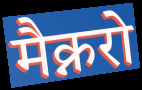
मैक्नरो